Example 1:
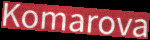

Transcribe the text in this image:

Komarova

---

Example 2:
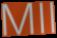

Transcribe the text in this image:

MII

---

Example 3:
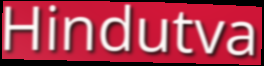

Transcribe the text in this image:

Hindutva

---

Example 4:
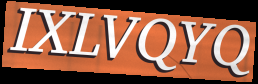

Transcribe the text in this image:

IXLVQYQ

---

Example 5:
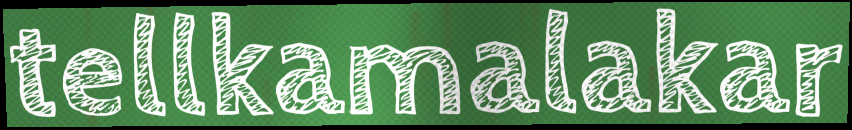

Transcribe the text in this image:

tellkamalakar